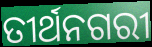
ତୀର୍ଥନଗରୀ